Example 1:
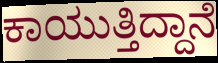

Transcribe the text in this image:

ಕಾಯುತ್ತಿದ್ದಾನೆ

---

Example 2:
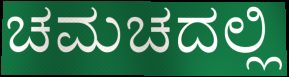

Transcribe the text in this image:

ಚಮಚದಲ್ಲಿ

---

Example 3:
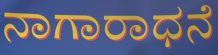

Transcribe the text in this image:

ನಾಗಾರಾಧನೆ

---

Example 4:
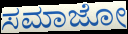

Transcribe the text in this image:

ಸಮಾಜೋ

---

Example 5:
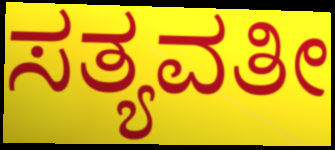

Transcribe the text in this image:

ಸತ್ಯವತೀ